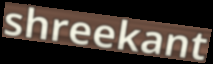
shreekant